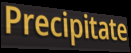
Precipitate